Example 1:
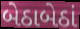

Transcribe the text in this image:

બેઠાબેઠાં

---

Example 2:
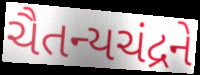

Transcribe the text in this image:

ચૈતન્યચંદ્રને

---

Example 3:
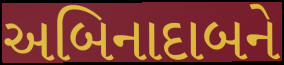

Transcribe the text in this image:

અબિનાદાબને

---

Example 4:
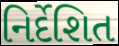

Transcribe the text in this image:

નિર્દેશિત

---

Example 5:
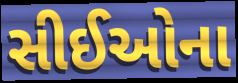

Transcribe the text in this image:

સીઈઓના